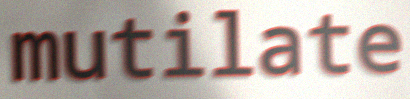
mutilate